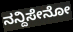
ನನ್ದಿಸೇನೋ